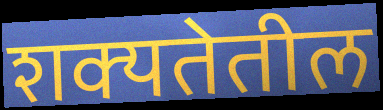
शक्यतेतील